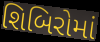
શિબિરોમાં